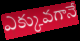
ఎక్కువగానే